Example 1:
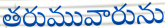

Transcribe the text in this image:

తరుమువారును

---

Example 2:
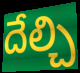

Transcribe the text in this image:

దేల్చి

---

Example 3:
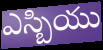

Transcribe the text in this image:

ఎస్బియు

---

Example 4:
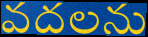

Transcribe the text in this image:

వదలను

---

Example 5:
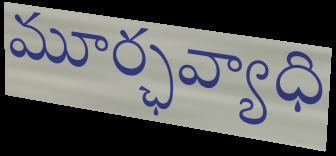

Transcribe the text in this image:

మూర్ఛవ్యాధి